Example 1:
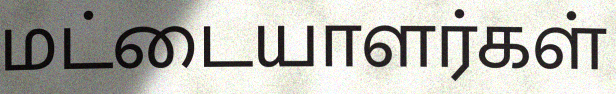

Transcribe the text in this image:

மட்டையாளர்கள்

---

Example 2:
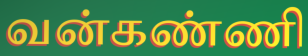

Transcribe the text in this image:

வன்கண்ணி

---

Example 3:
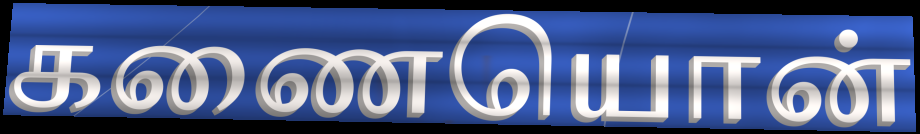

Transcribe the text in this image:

கணையொன்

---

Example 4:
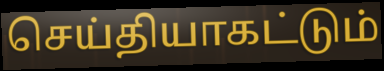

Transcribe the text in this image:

செய்தியாகட்டும்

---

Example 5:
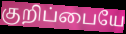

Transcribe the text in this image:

குறிப்பையே